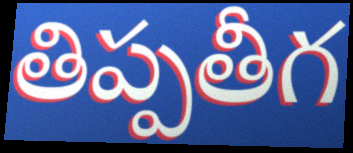
తిప్పతీగ